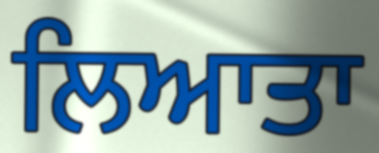
ਲਿਆਤਾ